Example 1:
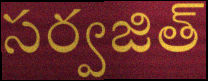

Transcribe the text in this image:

సర్వజిత్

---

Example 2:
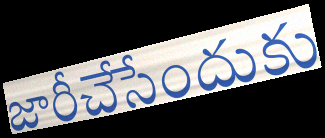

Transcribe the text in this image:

జారీచేసేందుకు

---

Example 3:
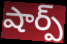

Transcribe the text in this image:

షార్ప్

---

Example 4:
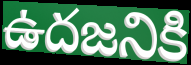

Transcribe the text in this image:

ఉదజనికి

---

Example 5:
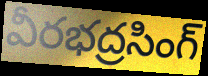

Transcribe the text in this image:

వీరభద్రసింగ్